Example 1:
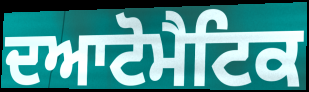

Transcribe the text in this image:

ਦਆਟੋਮੈਟਿਕ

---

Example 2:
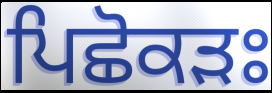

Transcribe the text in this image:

ਪਿਛੋਕੜਃ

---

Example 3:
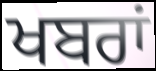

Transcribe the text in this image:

ਖਬਰਾਂ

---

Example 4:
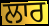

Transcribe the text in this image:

ਲਾਰ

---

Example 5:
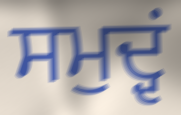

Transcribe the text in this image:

ਸਮੁਦ੍ਦਂ